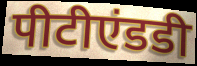
पीटीएंडडी